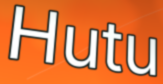
Hutu